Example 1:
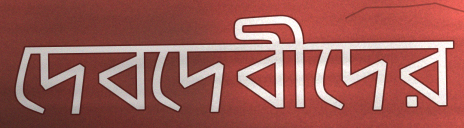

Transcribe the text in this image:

দেবদেবীদের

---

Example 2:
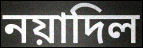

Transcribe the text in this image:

নয়াদিল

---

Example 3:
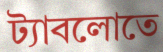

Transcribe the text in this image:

ট্যাবলোতে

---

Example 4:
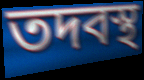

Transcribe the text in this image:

তদবস্থ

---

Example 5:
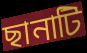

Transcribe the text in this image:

ছানাটি